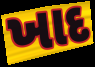
ખાદ